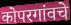
कोपरगांवचे